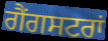
ਗੈਂਗਸਟਰਾਂ